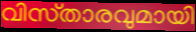
വിസ്‌താരവുമായി